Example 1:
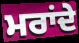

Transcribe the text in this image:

ਮਰਾਂਦੇ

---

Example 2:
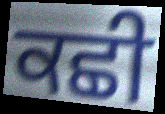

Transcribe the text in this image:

ਕਛੀ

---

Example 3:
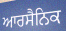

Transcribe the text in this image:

ਆਰਸੈਨਿਕ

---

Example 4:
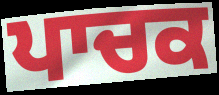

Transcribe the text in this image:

ਪਾਚਕ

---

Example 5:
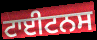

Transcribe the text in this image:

ਟਾਈਟਨਸ